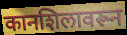
कानशिलावरून